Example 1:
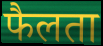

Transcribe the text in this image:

फैलता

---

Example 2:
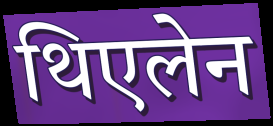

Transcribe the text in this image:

थिएलेन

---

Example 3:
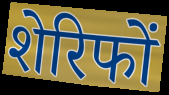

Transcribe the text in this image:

शेरिफों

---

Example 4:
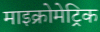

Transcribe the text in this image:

माइक्रोमेट्रिक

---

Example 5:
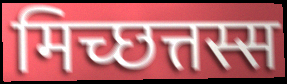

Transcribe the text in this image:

मिच्छत्तस्स